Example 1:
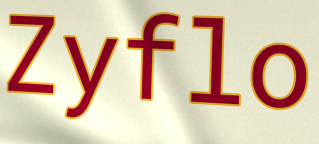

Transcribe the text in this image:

Zyflo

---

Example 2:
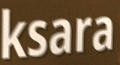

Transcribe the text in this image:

ksara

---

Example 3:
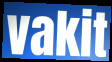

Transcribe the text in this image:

vakit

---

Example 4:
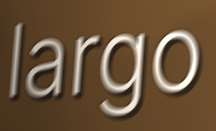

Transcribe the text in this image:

largo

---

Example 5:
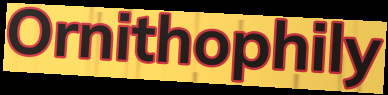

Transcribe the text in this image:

Ornithophily